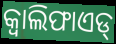
କ୍ୱାଲିଫାଏଡ୍